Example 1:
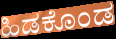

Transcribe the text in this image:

ಹಿಡಕೊಂಡ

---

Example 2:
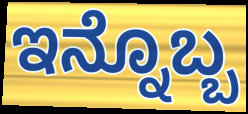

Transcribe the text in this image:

ಇನ್ನೊಬ್ಬ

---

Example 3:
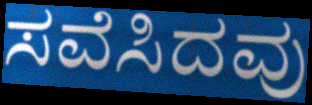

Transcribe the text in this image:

ಸವೆಸಿದವು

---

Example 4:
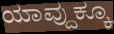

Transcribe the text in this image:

ಯಾವ್ದುಕ್ಕೂ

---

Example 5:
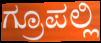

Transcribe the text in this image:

ಗ್ರೂಪಲ್ಲಿ